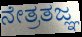
ನೇತ್ರತಜ್ಞ